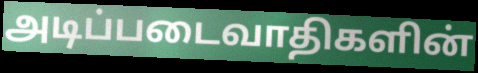
அடிப்படைவாதிகளின்